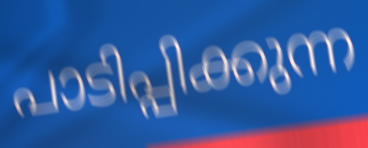
പാടിപ്പിക്കുന്ന